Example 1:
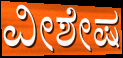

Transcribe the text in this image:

ವೀಶೇಷ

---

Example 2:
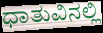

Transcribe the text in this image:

ಧಾತುವಿನಲ್ಲಿ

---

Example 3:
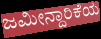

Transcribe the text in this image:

ಜಮೀನ್ದಾರಿಕೆಯ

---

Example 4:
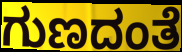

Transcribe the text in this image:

ಗುಣದಂತೆ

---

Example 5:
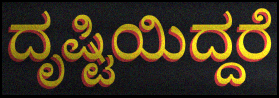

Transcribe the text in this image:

ದೃಷ್ಟಿಯಿದ್ದರೆ